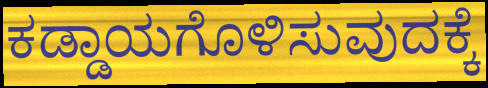
ಕಡ್ಡಾಯಗೊಳಿಸುವುದಕ್ಕೆ